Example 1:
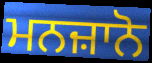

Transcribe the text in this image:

ਮਨਜ਼ਾਨੋ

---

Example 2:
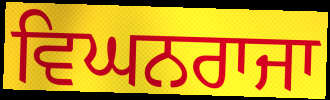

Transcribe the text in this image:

ਵਿਘਨਰਾਜਾ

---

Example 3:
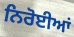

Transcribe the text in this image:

ਨਿਰੋਈਆਂ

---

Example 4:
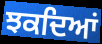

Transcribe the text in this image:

ਝਕਦਿਆਂ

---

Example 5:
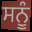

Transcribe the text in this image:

ਸਨੂੰ